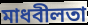
মাধবীলতা